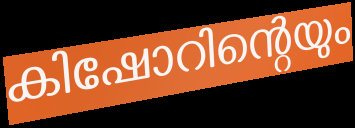
കിഷോറിന്റെയും